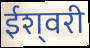
ईश्वरी